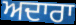
ਅਦਾਰਾ